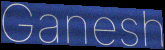
Ganesh